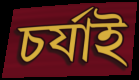
চর্যাই